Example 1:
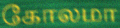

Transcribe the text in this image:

கோலமா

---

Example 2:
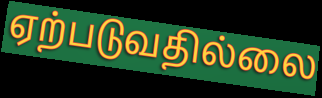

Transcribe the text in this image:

ஏற்படுவதில்லை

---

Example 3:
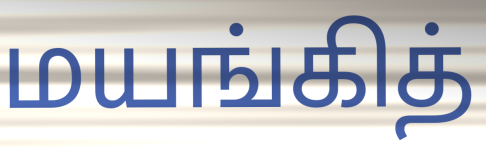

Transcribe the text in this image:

மயங்கித்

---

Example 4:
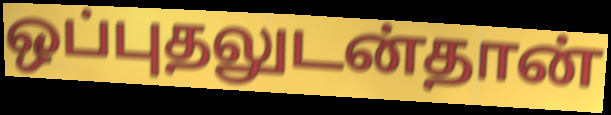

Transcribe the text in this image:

ஒப்புதலுடன்தான்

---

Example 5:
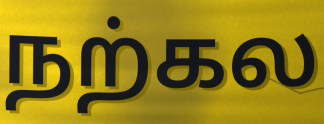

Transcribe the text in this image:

நற்கல